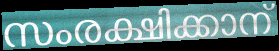
സംരക്ഷിക്കാന്